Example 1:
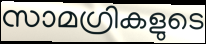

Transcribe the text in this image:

സാമഗ്രികളുടെ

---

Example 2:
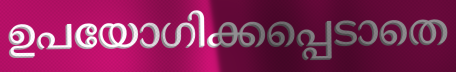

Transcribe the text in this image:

ഉപയോഗിക്കപ്പെടാതെ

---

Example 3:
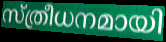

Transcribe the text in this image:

സ്ത്രീധനമായി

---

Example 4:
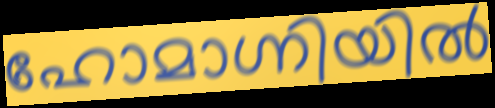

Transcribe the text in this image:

ഹോമാഗ്നിയിൽ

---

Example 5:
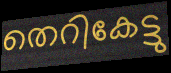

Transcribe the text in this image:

തെറികേട്ടു